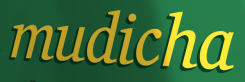
mudicha